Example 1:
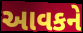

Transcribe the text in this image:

આવકને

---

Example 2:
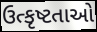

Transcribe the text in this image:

ઉત્કૃષ્ટતાઓ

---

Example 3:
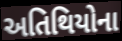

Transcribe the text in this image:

અતિથિયોના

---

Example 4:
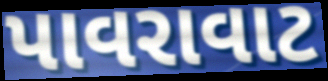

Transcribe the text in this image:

પાવરાવાટ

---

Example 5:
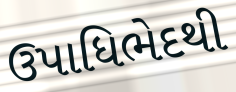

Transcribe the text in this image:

ઉપાધિભેદથી